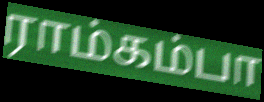
ராம்கம்பா